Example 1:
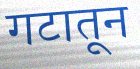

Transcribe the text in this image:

गटातून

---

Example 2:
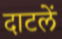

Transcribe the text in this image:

दाटलें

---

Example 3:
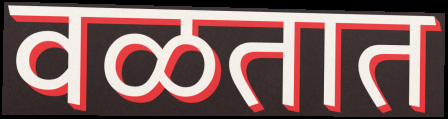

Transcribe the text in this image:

वळतात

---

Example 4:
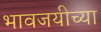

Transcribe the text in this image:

भावजयीच्या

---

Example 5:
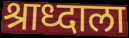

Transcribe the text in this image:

श्राध्दाला